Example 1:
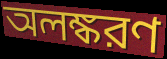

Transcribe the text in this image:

অলঙ্করণ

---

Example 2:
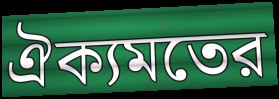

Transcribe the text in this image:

ঐক্যমতের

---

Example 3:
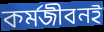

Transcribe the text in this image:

কর্মজীবনই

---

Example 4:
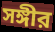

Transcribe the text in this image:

সঙ্গীর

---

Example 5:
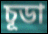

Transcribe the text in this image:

চূডা